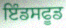
ਇੰਡਸਫੂਡ